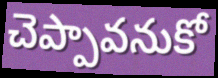
చెప్పావనుకో